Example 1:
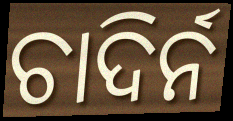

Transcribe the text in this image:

ଚାଦିର୍ନ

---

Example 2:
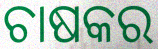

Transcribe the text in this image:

ଚାଷକର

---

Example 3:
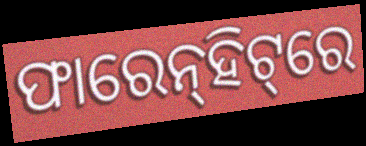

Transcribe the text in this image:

ଫାରେନ୍‌ହିଟ୍‌ରେ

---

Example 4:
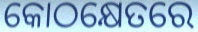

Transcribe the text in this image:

କୋଠକ୍ଷେତରେ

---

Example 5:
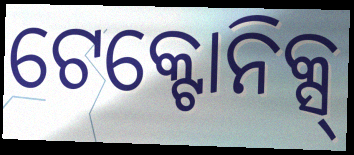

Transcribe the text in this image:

ଟେକ୍ଟୋନିକ୍ସ୍